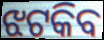
ଝଟକିବ